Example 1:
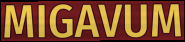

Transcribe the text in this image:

MIGAVUM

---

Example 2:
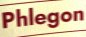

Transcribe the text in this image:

Phlegon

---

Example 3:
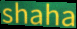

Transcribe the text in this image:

shaha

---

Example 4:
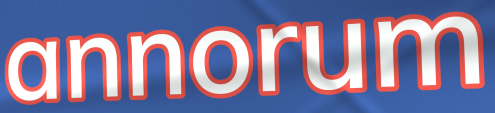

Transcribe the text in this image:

annorum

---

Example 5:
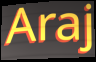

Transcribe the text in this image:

Araj